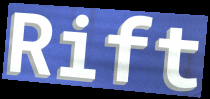
Rift